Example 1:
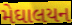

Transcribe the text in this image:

મેઘાલયન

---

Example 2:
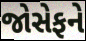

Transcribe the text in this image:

જોસેફને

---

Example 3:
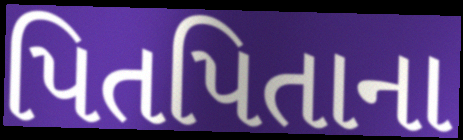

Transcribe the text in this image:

પિતપિતાના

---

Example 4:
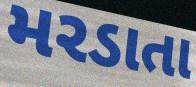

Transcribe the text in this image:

મરડાતા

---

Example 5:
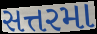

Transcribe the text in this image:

સત્તરમા